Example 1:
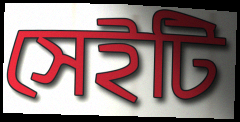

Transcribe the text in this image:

সেইটি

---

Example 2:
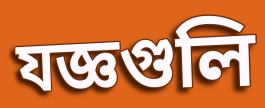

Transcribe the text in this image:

যজ্ঞগুলি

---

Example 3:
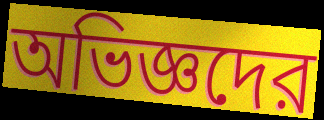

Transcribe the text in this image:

অভিজ্ঞদের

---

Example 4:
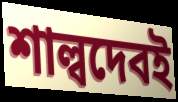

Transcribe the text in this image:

শাল্বদেবই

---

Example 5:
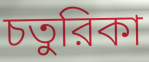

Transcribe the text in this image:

চতুরিকা